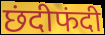
छंदीफंदी